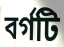
বর্গটি